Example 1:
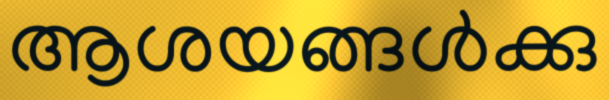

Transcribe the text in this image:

ആശയങ്ങൾക്കു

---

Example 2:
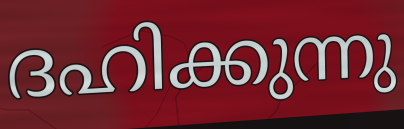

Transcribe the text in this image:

ദഹിക്കുന്നു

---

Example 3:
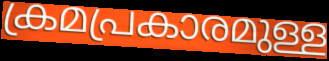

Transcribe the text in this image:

ക്രമപ്രകാരമുള്ള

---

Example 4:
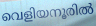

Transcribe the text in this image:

വെളിയനൂരിൽ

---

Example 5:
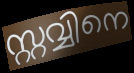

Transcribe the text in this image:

സ്റ്റവ്വിനെ